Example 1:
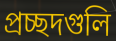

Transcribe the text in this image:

প্রচ্ছদগুলি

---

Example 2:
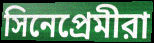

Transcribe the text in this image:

সিনেপ্রেমীরা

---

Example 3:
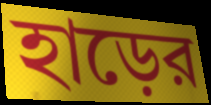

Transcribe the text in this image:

হাড়ের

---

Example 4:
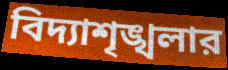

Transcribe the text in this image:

বিদ্যাশৃঙ্খলার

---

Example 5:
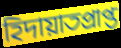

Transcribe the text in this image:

হিদায়াতপ্রাপ্ত